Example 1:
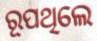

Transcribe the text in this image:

ରୂପଥିଲେ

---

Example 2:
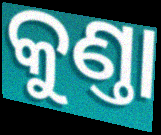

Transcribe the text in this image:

କୁଣ୍ତା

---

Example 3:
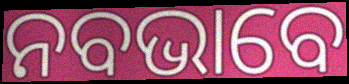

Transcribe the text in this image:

ନବଭାବେ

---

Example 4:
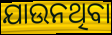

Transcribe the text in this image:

ଯାଉନଥିବା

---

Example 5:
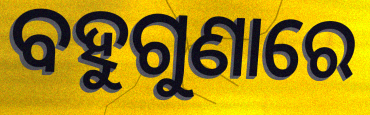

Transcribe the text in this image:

ବହୁଗୁଣାରେ